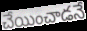
చేయించాడనే